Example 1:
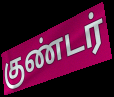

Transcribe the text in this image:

குண்டர்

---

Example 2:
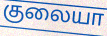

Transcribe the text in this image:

குலையா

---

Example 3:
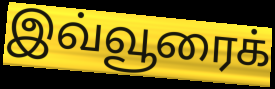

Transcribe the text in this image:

இவ்வூரைக்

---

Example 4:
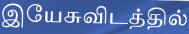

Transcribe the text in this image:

இயேசுவிடத்தில்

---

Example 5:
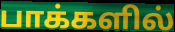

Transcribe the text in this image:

பாக்களில்